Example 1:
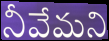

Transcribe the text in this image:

నీవేమని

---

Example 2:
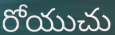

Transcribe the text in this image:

రోయుచు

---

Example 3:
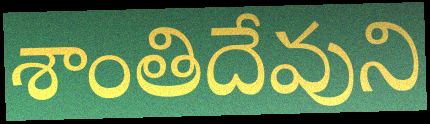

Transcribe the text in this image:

శాంతిదేవుని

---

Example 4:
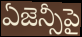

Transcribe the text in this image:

ఏజెన్సీపై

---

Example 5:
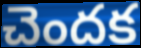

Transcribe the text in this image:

చెందక